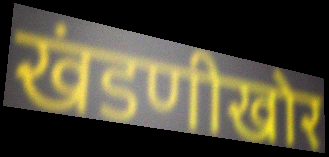
खंडणीखोर